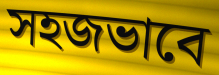
সহজভাবে